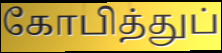
கோபித்துப்